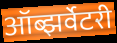
ऑब्झर्वेटरी